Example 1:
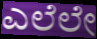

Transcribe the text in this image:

ಎಲೆಲೇ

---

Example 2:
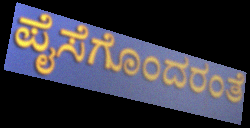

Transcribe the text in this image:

ಪೈಸೆಗೊಂದರಂತೆ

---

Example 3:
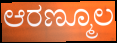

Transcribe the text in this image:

ಆರಣ್ಮೂಲ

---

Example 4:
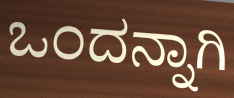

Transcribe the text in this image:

ಒಂದನ್ನಾಗಿ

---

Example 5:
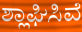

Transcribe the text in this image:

ಶ್ಲಾಘಿಸಿವೆ